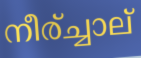
നീര്ച്ചാല്